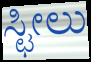
ಸ್ಟೀಲು